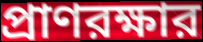
প্রাণরক্ষার